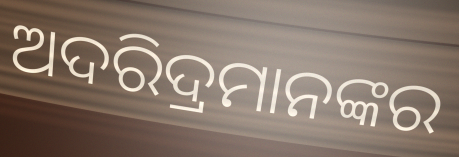
ଅଦରିଦ୍ରମାନଙ୍କର